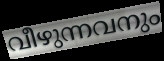
വീഴുന്നവനും